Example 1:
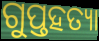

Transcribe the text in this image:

ଗୁପ୍ତହତ୍ୟା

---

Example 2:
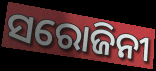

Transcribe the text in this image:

ସରୋଜିନୀ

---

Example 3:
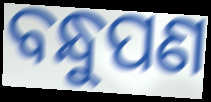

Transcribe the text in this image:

ବନ୍ଧୁପଣ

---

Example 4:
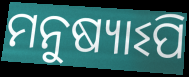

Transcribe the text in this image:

ମନୁଷ୍ୟାଽପି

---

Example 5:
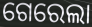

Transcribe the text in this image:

ଗେରେଲା